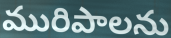
మురిపాలను